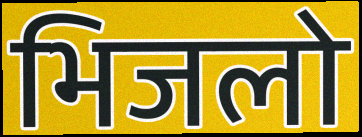
भिजलो